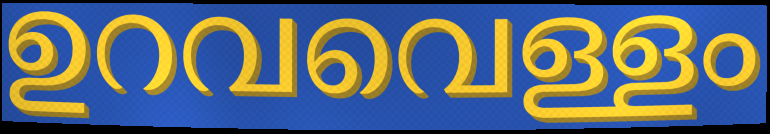
ഉറവവെള്ളം